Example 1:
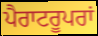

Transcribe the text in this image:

ਪੈਰਾਟਰੂਪਰਾਂ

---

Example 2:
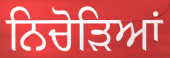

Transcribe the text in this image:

ਨਿਚੋੜਿਆਂ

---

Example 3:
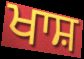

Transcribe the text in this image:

ਖਾਸ਼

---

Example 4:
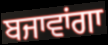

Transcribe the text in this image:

ਬਜਾਵਾਂਗਾ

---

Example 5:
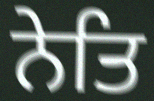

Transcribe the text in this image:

ਨੇਤਿ